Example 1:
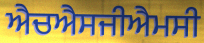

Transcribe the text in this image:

ਐਚਐਸਜੀਐਮਸੀ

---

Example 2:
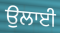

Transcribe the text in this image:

ਉਲਾਈ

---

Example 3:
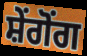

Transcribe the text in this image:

ਸ਼ੇਂਗੋਂਗ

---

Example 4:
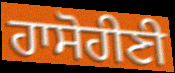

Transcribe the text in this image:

ਹਾਸੋਹੀਣੀ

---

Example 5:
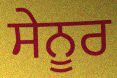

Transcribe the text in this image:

ਸੇਨੂਰ